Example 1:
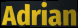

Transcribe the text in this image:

Adrian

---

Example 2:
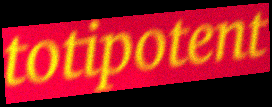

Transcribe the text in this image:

totipotent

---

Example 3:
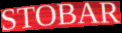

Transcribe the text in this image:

STOBAR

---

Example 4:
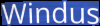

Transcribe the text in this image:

Windus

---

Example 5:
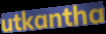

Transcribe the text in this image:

utkantha